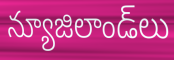
న్యూజిలాండ్‌లు